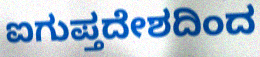
ಐಗುಪ್ತದೇಶದಿಂದ